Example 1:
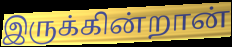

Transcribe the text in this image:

இருக்கின்றான்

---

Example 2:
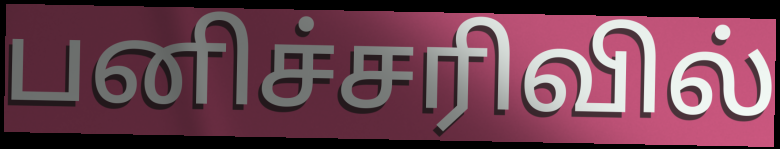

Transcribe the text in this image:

பனிச்சரிவில்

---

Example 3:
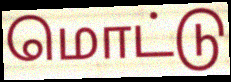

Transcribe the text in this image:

மொட்டு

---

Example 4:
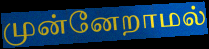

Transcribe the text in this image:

முன்னேறாமல்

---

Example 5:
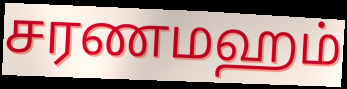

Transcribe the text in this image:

சரணமஹம்